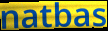
natbas